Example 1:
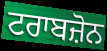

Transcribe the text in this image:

ਟਰਾਬਜ਼ੋਨ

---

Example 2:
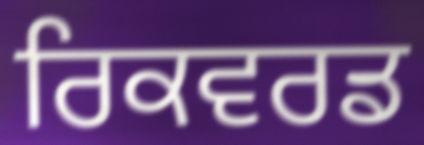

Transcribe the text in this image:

ਰਿਕਵਰਡ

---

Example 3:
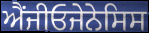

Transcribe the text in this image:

ਐਂਜੀਓਜੇਨੇਸਿਸ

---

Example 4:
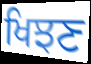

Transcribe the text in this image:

ਖਿਝਣ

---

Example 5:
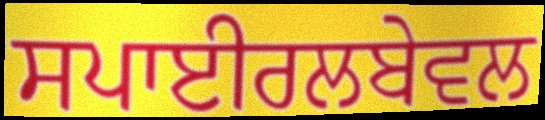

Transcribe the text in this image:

ਸਪਾਈਰਲਬੇਵਲ